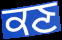
ਕਣ